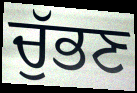
ਚੁੱਭਣ